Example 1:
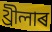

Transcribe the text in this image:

থ্ৰীলাৰ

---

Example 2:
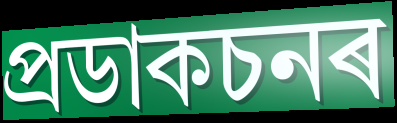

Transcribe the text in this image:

প্ৰডাকচনৰ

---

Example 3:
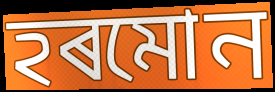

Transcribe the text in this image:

হৰমোন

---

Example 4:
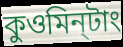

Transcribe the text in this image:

কুওমিন্‌টাং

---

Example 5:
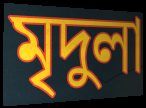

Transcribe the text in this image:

মৃদুলা